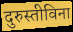
दुरुस्तीविना